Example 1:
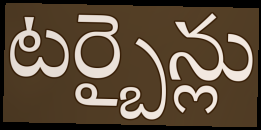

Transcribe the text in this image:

టర్బైన్లు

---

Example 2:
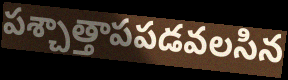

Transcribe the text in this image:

పశ్చాత్తాపపడవలసిన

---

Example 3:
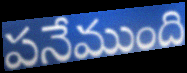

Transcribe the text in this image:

పనేముంది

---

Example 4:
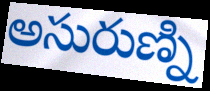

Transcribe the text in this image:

అసురుణ్ని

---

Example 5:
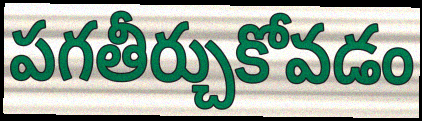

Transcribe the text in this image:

పగతీర్చుకోవడం